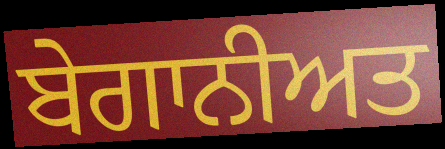
ਬੇਗਾਨੀਅਤ